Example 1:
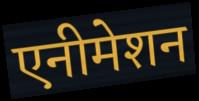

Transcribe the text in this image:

एनीमेशन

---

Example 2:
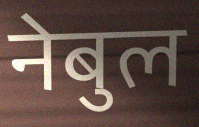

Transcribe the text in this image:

नेबुल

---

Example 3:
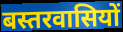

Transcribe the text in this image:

बस्तरवासियों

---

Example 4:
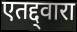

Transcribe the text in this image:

एतद्द्वारा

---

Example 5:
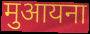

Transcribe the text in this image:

मुआयना